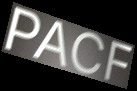
PACF